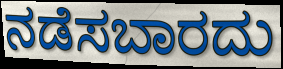
ನಡೆಸಬಾರದು